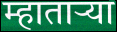
म्हातार्‍या